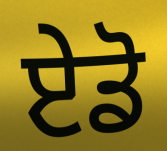
ਏਡੋ